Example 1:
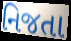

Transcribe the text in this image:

નિજતા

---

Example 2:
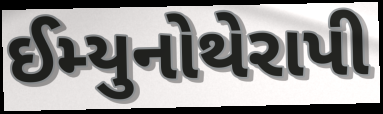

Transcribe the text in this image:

ઈમ્યુનોથેરાપી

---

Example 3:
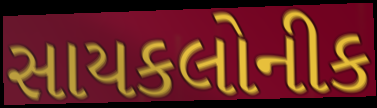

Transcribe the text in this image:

સાયકલોનીક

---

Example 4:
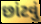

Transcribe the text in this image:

છાંટવું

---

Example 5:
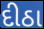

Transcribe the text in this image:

દીઠા